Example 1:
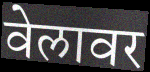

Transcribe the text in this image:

वेलावर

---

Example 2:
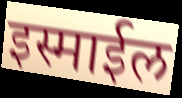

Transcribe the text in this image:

इस्माईल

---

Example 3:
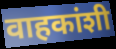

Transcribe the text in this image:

वाहकांशी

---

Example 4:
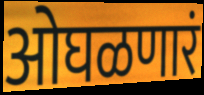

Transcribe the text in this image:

ओघळणारं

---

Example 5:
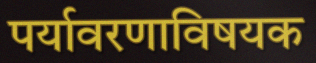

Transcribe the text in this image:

पर्यावरणाविषयक